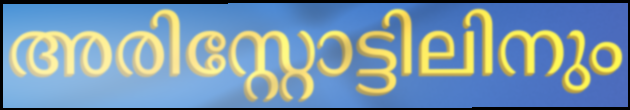
അരിസ്റ്റോട്ടിലിനും